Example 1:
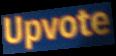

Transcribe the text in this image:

Upvote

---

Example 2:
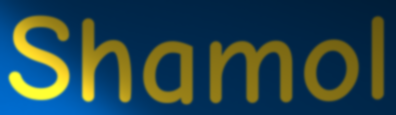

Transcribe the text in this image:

Shamol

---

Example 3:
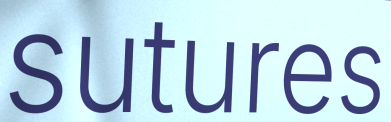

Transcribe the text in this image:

sutures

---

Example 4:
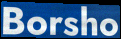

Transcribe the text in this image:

Borsho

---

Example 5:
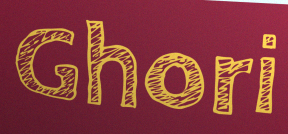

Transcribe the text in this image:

Ghori